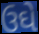
ઉઘે